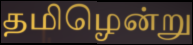
தமிழென்று